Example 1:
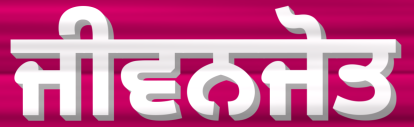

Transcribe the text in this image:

ਜੀਵਨਜੋਤ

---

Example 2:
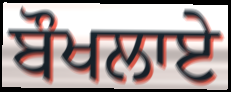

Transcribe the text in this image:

ਬੌਖਲਾਏ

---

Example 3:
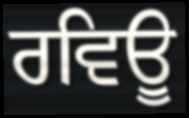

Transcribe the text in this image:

ਰਵਿਊ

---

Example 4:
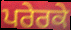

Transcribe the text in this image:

ਪਰੇਰਕੇ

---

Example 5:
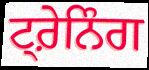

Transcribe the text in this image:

ਟ੍ਰ਼ੇਨਿੰਗ